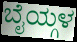
ಬೈಯ್ಗಳ